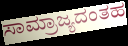
ಸಾಮ್ರಾಜ್ಯದಂತಹ